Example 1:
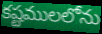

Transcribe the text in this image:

కష్టములలోను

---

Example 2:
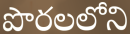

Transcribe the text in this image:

పొరలలోని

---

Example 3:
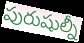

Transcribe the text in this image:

పురుషుల్నీ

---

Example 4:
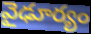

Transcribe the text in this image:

వైఢూర్యం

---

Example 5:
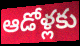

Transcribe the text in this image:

ఆడోళ్లకు